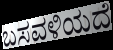
ಬಸವಳಿಯದೆ